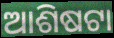
ଆଶିଷଟା